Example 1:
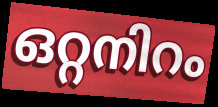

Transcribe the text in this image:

ഒറ്റനിറം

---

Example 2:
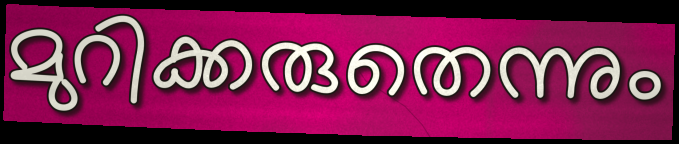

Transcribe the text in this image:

മുറിക്കരുതെന്നും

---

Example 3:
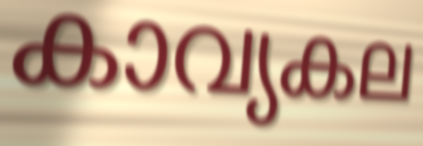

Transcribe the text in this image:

കാവ്യകല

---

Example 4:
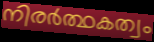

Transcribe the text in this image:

നിരർത്ഥകത്വം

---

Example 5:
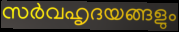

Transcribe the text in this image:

സർവഹൃദയങ്ങളും